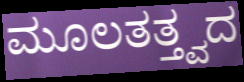
ಮೂಲತತ್ತ್ವದ